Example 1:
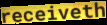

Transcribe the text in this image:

receiveth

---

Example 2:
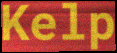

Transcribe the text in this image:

Kelp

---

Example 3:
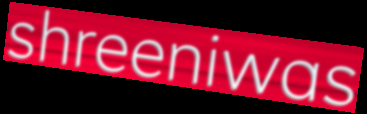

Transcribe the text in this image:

shreeniwas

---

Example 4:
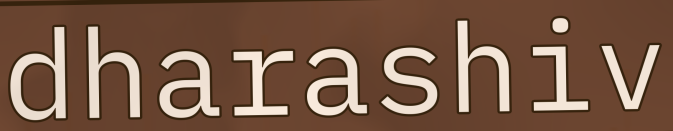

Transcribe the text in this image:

dharashiv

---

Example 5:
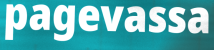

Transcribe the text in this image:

pagevassa